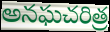
అనఘచరిత్ర